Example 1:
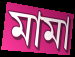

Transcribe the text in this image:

মামা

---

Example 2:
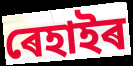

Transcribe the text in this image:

ৰেহাইৰ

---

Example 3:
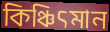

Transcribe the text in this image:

কিঞ্চিৎমান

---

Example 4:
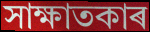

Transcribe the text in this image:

সাক্ষাতকাৰ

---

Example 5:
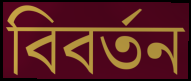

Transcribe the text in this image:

বিবৰ্তন